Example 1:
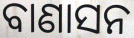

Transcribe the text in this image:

ବାଣାସନ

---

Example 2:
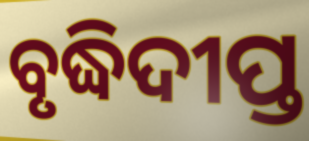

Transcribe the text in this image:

ବୃଦ୍ଧିଦୀପ୍ତ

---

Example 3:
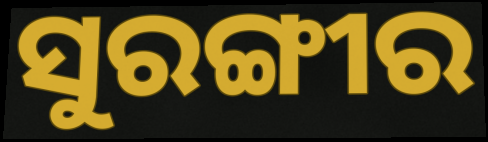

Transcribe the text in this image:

ସୁରଙ୍ଗୀର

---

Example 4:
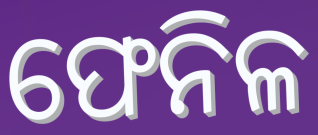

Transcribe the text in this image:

ଫେନିଳ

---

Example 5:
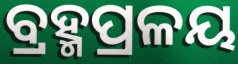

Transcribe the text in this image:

ବ୍ରହ୍ମପ୍ରଳୟ